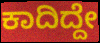
ಕಾದಿದ್ದೇ